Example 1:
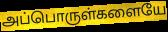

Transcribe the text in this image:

அப்பொருள்களையே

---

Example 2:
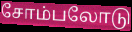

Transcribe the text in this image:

சோம்பலோடு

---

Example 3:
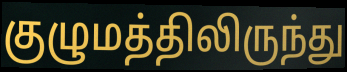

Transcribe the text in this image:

குழுமத்திலிருந்து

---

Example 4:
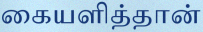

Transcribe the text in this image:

கையளித்தான்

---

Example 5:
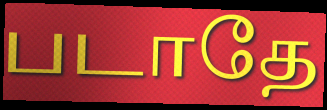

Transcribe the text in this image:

படாதே